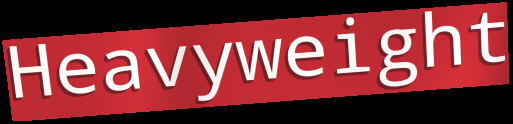
Heavyweight